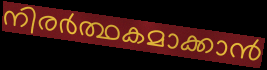
നിരർത്ഥകമാക്കാൻ